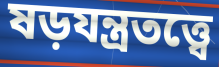
ষড়যন্ত্রতত্ত্বে